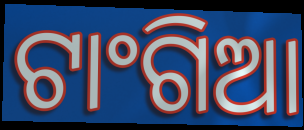
ଟାଂଗିଆ